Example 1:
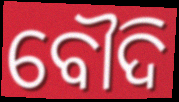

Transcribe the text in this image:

ବୌଦି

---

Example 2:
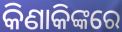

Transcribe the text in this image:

କିଣାକିଙ୍କରେ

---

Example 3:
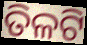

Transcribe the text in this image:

ତିଳଟି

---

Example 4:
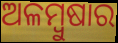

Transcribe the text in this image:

ଅଳମ୍ବୁଷାର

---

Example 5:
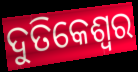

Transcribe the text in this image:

ଦୁତିକେଶ୍ୱର